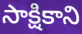
సాక్షికాని